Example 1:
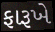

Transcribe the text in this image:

ફારૂખે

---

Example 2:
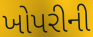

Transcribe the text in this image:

ખોપરીની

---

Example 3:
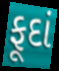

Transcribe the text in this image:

ફૂદાં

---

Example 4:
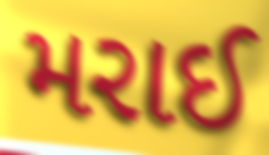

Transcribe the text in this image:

મરાઈ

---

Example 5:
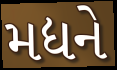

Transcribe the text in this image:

મદ્યને